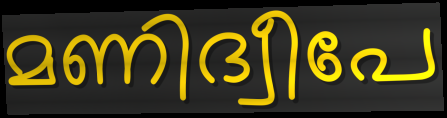
മണിദ്വീപേ